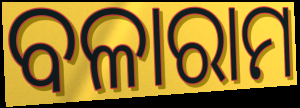
ବଳାରାମ